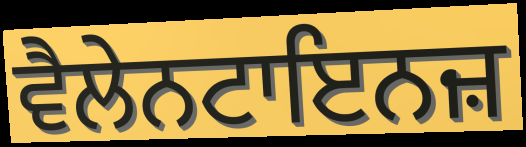
ਵੈਲੇਨਟਾਇਨਜ਼